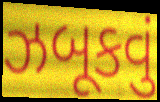
ઝબૂકવું